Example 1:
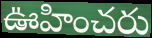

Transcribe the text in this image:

ఊహించరు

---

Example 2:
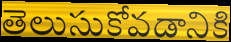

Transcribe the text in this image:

తెలుసుకోవడానికి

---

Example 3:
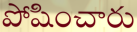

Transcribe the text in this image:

పోషించారు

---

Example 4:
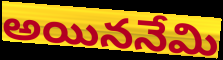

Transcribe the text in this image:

అయిననేమి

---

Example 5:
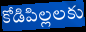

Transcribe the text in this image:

కోడిపిల్లలకు